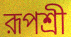
রূপশ্রী